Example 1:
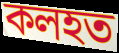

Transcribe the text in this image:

কলহত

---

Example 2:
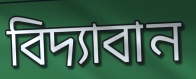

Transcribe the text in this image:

বিদ্যাবান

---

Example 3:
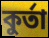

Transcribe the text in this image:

কুৰ্তা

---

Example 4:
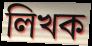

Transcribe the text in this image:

লিখক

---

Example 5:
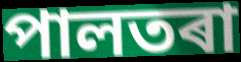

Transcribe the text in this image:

পালতৰা